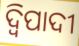
ଦ୍ୱିପାଦୀ